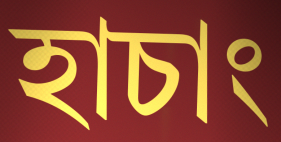
হাচাং